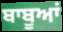
ਬਾਬੂਆਂ